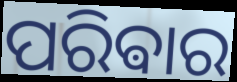
ପରିଵାର